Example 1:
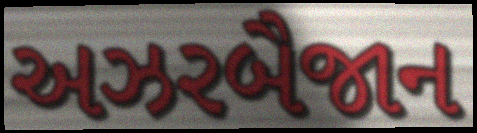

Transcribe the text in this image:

અઝરબૈજાન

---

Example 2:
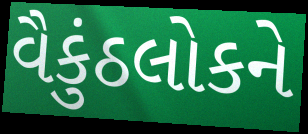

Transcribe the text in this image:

વૈકુંઠલોકને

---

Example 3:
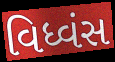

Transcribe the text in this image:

વિધ્વંસ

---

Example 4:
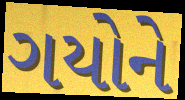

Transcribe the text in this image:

ગયોને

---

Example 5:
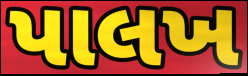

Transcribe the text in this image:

પાલખ